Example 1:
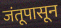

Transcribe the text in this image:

जंतूपासून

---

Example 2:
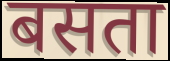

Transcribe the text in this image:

बसता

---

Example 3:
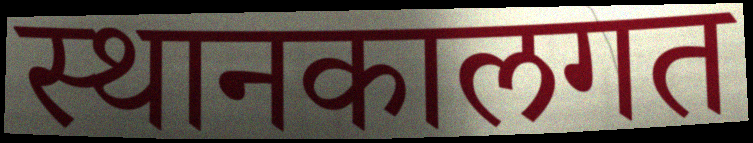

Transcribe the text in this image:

स्थानकालगत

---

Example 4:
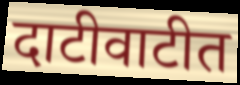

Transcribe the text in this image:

दाटीवाटीत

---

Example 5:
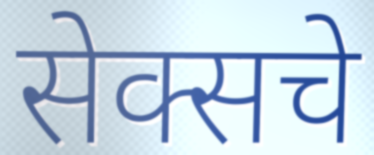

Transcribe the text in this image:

सेक्सचे